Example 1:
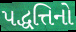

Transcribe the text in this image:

પદ્ધત્તિનો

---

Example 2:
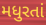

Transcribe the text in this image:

મધુરતાં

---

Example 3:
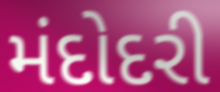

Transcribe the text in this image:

મંદોદરી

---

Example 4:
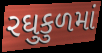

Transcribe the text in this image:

રઘુકુળમાં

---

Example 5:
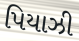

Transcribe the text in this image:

પિયાઝી